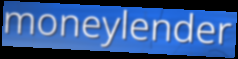
moneylender